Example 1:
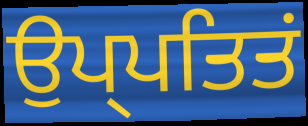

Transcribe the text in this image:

ਉਪ੍ਪਤਿਤਂ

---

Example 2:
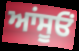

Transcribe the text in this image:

ਆਂਸੂਓਂ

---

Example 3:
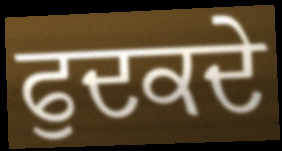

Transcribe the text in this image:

ਫੁਦਕਦੇ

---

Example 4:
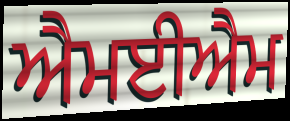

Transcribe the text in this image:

ਐਮਈਐਮ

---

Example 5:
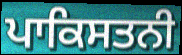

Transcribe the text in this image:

ਪਾਕਿਸਤਨੀ